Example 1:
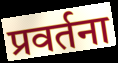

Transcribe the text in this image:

प्रवर्तना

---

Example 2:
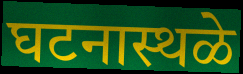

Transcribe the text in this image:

घटनास्थळे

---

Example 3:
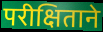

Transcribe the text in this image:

परीक्षिताने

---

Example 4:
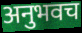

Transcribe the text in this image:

अनुभवच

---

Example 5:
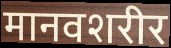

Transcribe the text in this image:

मानवशरीर